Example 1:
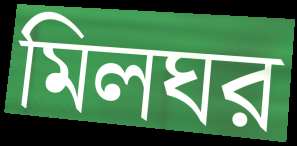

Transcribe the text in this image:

মিলঘর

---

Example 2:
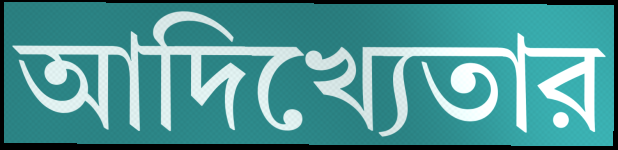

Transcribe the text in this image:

আদিখ্যেতার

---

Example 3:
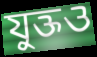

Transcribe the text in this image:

যুক্তও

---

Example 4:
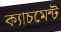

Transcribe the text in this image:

ক্যাচমেন্ট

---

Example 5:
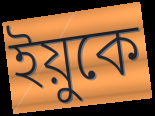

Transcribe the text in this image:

ইয়ুকে